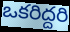
ఒకరిద్దరి